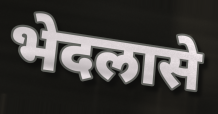
भेदलासे